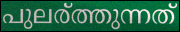
പുലര്ത്തുന്നത്